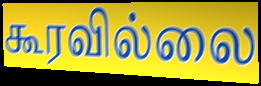
கூரவில்லை